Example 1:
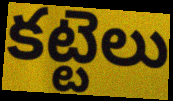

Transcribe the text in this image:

కట్టెలు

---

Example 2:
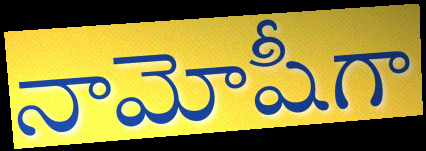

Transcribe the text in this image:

నామోషీగా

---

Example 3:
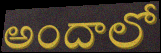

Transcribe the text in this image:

అందాలో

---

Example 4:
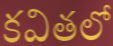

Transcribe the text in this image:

కవితలో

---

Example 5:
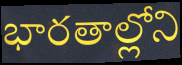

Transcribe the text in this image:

భారతాల్లోని